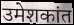
उमेशकांत